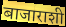
बाजाराशी